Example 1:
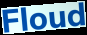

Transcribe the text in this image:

Floud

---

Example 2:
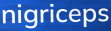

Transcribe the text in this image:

nigriceps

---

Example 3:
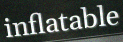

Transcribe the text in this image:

inflatable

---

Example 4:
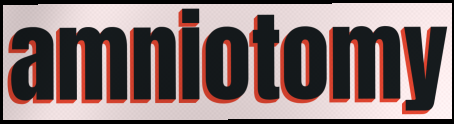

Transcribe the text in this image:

amniotomy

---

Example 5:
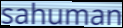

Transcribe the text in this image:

sahuman